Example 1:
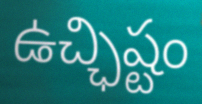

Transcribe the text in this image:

ఉచ్ఛిష్టం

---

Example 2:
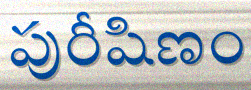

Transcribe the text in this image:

పురీషిణం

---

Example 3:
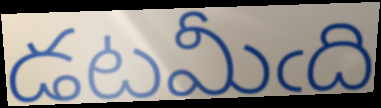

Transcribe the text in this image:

డటమీఁది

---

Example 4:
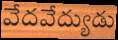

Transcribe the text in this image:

వేదవేద్యుడు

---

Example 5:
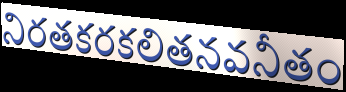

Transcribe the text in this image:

నిరతకరకలితనవనీతం